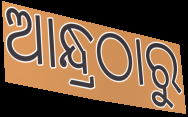
ଆନ୍ଧ୍ରଠାରୁ